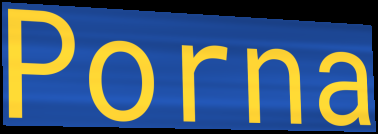
Porna